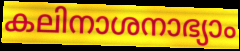
കലിനാശനാഭ്യാം